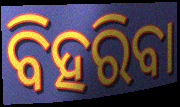
ବିହରିବା